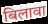
बिलावा